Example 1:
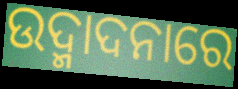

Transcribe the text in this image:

ଉଦ୍ମାଦନାରେ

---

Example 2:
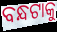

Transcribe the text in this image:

ବନ୍ଧଟାକୁ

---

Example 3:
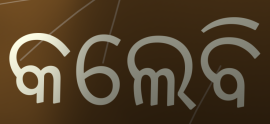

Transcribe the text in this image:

କଲେବି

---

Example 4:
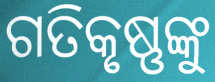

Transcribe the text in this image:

ଗତିକୃଷ୍ଣଙ୍କୁ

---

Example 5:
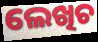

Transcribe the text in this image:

ଲେଖିଚ